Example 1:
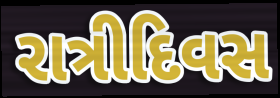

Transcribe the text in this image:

રાત્રીદિવસ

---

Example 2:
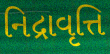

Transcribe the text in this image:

નિદ્રાવૃત્તિ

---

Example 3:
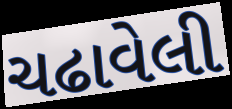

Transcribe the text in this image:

ચઢાવેલી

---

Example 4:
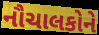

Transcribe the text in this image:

નૌચાલકોને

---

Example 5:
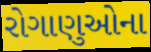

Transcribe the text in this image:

રોગાણુઓના